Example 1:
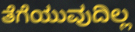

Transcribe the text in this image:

ತೆಗೆಯುವುದಿಲ್ಲ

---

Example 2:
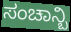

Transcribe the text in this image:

ಸಂಚಾನ್ಬಿ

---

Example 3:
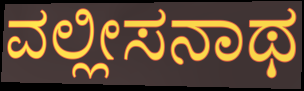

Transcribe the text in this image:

ವಲ್ಲೀಸನಾಥ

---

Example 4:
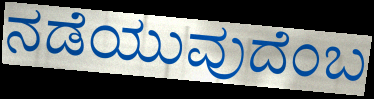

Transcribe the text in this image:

ನಡೆಯುವುದೆಂಬ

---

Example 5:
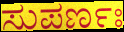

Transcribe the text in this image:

ಸುಪರ್ಣಃ